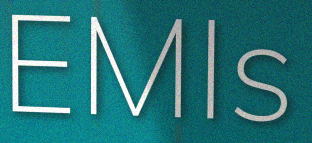
EMIs